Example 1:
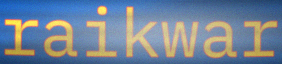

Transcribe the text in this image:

raikwar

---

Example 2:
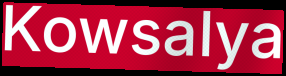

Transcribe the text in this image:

Kowsalya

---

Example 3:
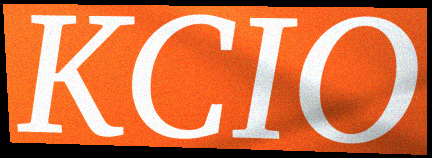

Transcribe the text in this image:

KCIO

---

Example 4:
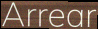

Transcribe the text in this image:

Arrear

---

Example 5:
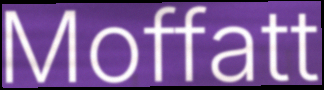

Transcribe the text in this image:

Moffatt